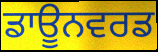
ਡਾਊਨਵਰਡ